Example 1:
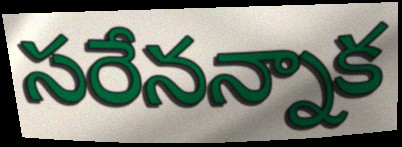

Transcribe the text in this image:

సరేనన్నాక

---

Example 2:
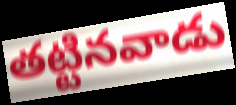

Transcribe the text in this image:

తట్టినవాడు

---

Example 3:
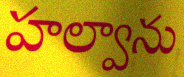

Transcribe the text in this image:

హల్వాను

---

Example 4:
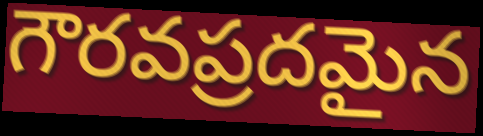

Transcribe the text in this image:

గౌరవప్రదమైన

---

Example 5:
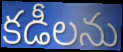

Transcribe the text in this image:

కడీలను